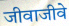
जीवाजीवे